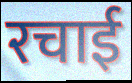
रचाई